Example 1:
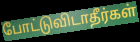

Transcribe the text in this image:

போட்டுவிடாதீர்கள்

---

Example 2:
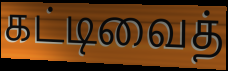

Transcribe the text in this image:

கட்டிவைத்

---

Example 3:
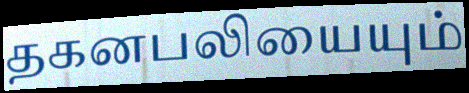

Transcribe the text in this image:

தகனபலியையும்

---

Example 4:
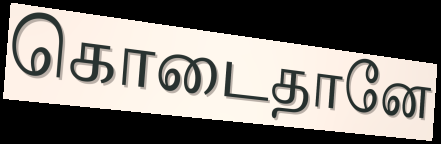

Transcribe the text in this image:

கொடைதானே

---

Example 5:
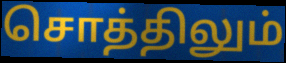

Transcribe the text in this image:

சொத்திலும்